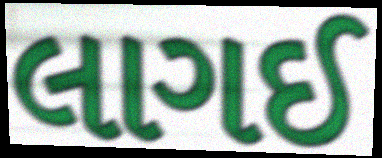
લાગઈ